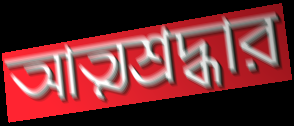
আত্মশ্রদ্ধার